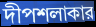
দীপশলাকার